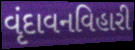
વૃંદાવનવિહારી